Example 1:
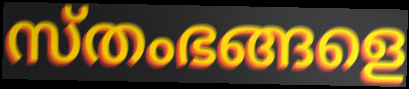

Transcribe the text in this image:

സ്തംഭങ്ങളെ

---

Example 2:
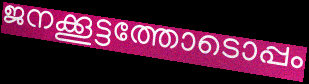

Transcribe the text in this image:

ജനക്കൂട്ടത്തോടൊപ്പം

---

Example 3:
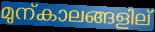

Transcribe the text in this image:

മുന്കാലങ്ങളില്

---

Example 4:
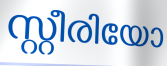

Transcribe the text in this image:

സ്റ്റീരിയോ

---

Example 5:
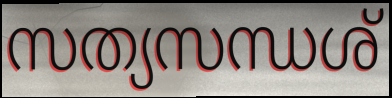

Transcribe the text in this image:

സത്യസന്ധശ്